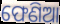
ଫେଣିଆ